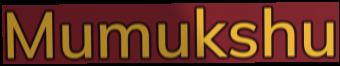
Mumukshu